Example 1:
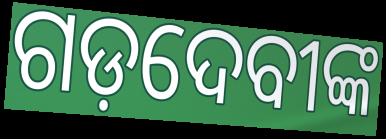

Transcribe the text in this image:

ଗଡ଼ଦେବୀଙ୍କ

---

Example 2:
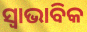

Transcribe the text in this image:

ସ୍ଵାଭାବିକ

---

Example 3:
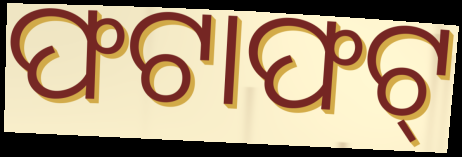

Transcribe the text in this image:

ଫଟାଫଟ୍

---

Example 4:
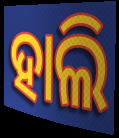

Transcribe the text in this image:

ହାଲି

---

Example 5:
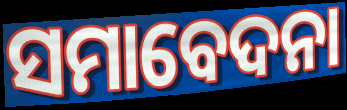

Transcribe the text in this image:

ସମାବେଦନା